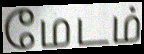
மேடம்